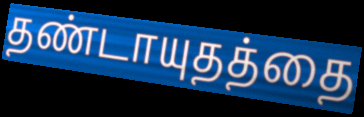
தண்டாயுதத்தை